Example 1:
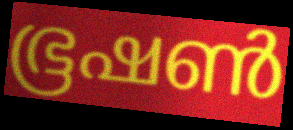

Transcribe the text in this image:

ഭൂഷൺ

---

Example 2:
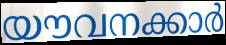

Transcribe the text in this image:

യൗവനക്കാർ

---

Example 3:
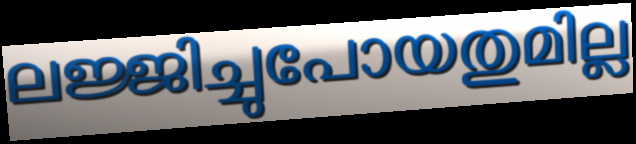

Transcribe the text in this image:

ലജ്ജിച്ചുപോയതുമില്ല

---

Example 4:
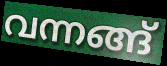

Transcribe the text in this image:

വന്നങ്ങ്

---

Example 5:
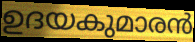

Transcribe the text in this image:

ഉദയകുമാരൻ